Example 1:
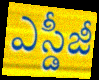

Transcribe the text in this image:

ఎస్డీజీ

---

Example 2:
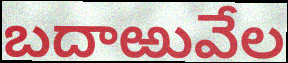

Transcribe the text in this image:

బదాఱువేల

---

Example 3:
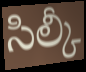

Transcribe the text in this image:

సిల్కీ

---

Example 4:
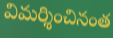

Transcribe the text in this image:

విమర్శించినంత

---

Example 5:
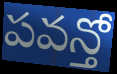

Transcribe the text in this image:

పవన్తో